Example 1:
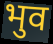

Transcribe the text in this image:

भुव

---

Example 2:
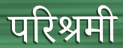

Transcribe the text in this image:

परिश्रमी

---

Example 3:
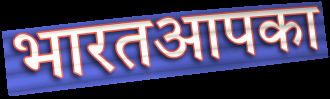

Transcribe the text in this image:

भारतआपका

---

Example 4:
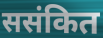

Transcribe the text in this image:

ससंकित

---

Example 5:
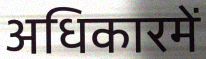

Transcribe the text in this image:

अधिकारमें